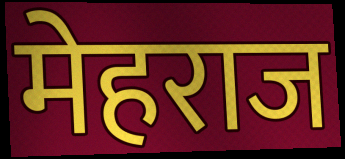
मेहराज